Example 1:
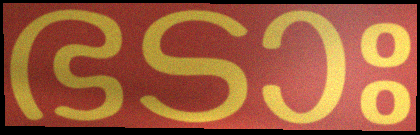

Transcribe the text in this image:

ഭടാഃ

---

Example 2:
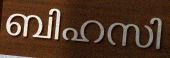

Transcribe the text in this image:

ബിഹസി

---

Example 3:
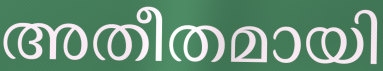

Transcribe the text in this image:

അതീതമായി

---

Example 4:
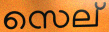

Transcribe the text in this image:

സെല്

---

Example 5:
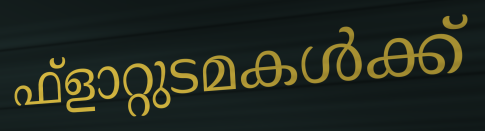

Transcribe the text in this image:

ഫ്ളാറ്റുടമകൾക്ക്